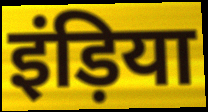
इंड़िया